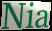
Nia